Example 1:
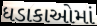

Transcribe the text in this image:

ધડાકાઓમાં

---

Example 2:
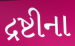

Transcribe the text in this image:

દ્રષ્ટીના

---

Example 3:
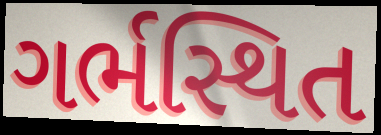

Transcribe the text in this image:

ગર્ભસ્થિત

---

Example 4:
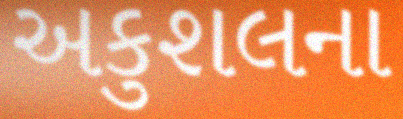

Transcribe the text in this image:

અકુશલના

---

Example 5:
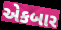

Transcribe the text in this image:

એકબાર